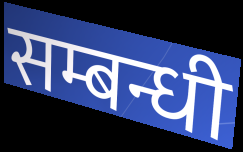
सम्बन्धी